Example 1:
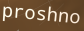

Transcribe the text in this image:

proshno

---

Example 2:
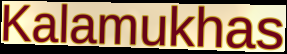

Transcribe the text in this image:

Kalamukhas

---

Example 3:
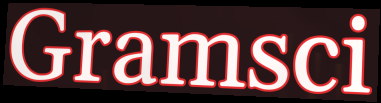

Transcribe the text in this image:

Gramsci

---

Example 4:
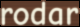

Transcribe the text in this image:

rodar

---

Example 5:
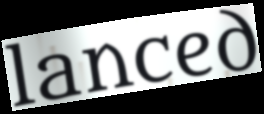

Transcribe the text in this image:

lanced